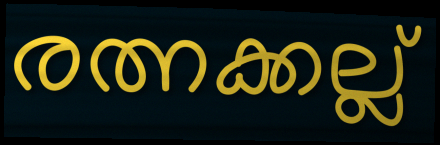
രത്നക്കല്ല്